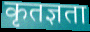
कृतज्ञता